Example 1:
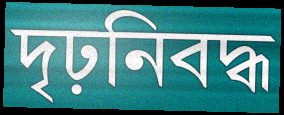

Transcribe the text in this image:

দৃঢ়নিবদ্ধ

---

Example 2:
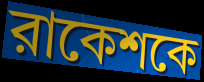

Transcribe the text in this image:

রাকেশকে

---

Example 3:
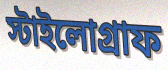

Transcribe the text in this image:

স্টাইলোগ্রাফ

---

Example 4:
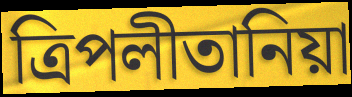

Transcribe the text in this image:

ত্রিপলীতানিয়া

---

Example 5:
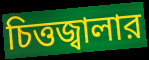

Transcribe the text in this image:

চিত্তজ্বালার